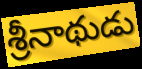
శ్రీనాథుడు